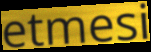
etmesi